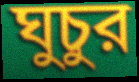
ঘুচুর